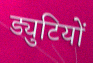
ड्युटियों